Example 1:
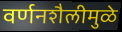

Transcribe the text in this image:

वर्णनशैलीमुळे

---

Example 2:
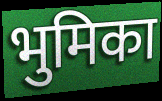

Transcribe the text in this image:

भुमिका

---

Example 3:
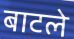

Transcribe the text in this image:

बाटले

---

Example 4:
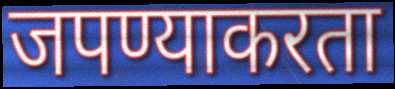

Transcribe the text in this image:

जपण्याकरता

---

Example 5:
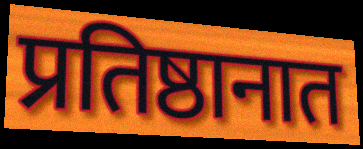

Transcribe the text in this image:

प्रतिष्ठानात